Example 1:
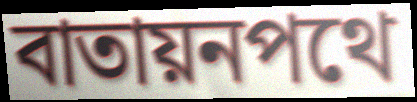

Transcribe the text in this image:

বাতায়নপথে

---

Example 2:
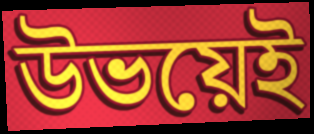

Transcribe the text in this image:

উভয়েই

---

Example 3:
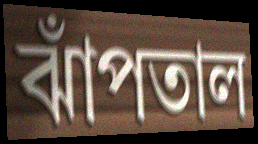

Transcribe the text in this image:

ঝাঁপতাল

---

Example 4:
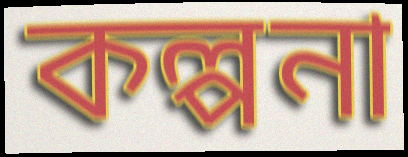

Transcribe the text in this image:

কল্পনা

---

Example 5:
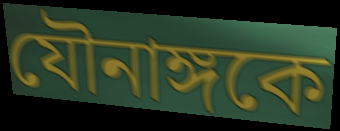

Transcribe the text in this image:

যৌনাঙ্গকে